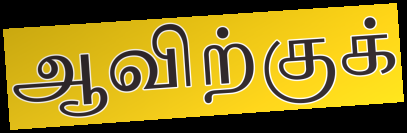
ஆவிற்குக்